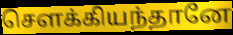
சௌக்கியந்தானே